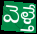
వెళ్తే